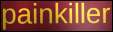
painkiller